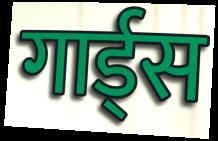
गार्ड्स